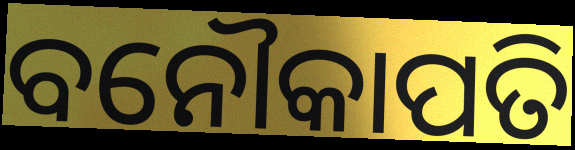
ବନୌକାପତି